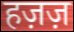
हज़ज़